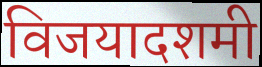
विजयादशमी